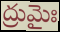
ద్రుమైః